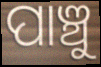
ପାଞ୍ଚୁ